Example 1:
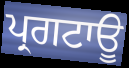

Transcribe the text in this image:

ਪ੍ਰਗਟਾਊ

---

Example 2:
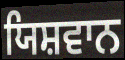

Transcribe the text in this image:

ਯਿਸ਼ਵਾਨ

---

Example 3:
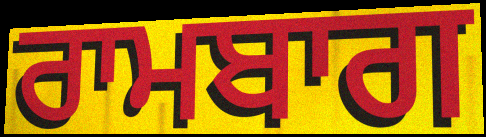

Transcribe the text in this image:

ਰਾਮਬਾਗ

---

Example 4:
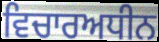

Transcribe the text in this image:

ਵਿਚਾਰਅਧੀਨ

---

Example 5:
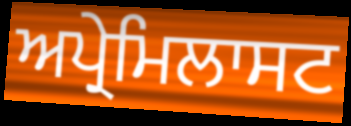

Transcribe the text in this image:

ਅਪ੍ਰੇਮਿਲਾਸਟ